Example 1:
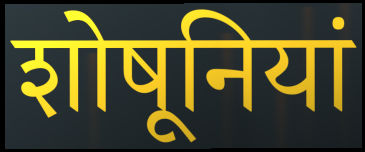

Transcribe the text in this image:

शोषूनियां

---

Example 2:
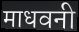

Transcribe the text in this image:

माधवनी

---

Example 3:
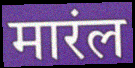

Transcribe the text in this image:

मारंल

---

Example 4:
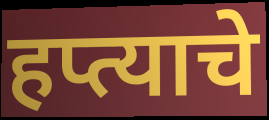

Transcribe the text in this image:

हप्त्याचे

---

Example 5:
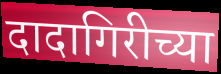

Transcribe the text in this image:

दादागिरीच्या